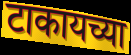
टाकायच्या